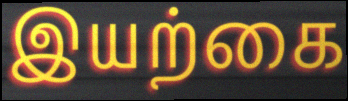
இயற்கை